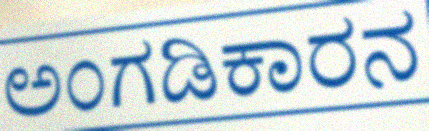
ಅಂಗಡಿಕಾರನ